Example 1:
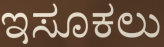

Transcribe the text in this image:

ಇಸೂಕಲು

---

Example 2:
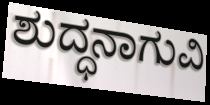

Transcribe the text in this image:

ಶುದ್ಧನಾಗುವಿ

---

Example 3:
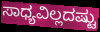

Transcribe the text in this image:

ಸಾಧ್ಯವಿಲ್ಲದಷ್ಟು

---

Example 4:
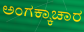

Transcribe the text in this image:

ಅಂಗಕ್ಕಾಚಾರ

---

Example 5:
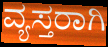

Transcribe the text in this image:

ವ್ಯಸ್ತರಾಗಿ